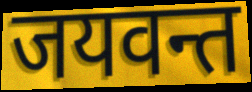
जयवन्त